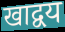
खाद्वय